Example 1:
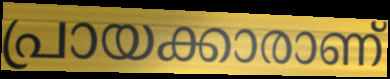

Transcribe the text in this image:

പ്രായക്കാരാണ്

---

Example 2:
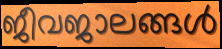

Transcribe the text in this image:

ജീവജാലങ്ങൾ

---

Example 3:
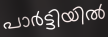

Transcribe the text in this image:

പാർട്ടിയിൽ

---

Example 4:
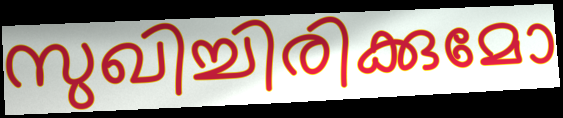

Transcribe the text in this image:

സുഖിച്ചിരിക്കുമോ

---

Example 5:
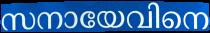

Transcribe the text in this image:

സനായേവിനെ